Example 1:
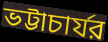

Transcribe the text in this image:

ভট্টাচার্যর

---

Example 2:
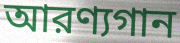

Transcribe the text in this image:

আরণ্যগান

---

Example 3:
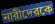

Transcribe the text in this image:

নারীদেরকে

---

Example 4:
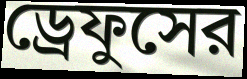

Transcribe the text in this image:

ড্রেফুসের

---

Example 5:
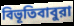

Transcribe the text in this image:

বিভূতিবাবুরা